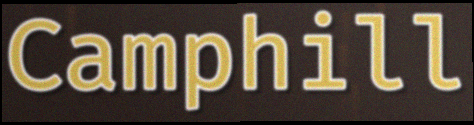
Camphill